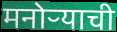
मनोऱ्याची